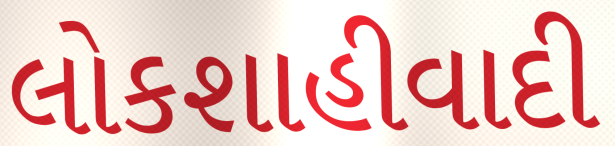
લોકશાહીવાદી